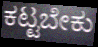
ಕಟ್ಟಬೇಕು